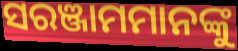
ସରଞ୍ଜାମମାନଙ୍କୁ